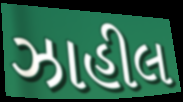
ઝાહીલ